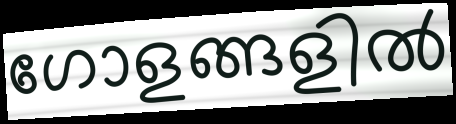
ഗോളങ്ങളിൽ